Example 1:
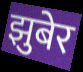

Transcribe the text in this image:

झुबेर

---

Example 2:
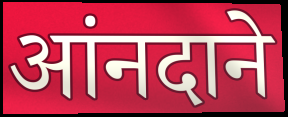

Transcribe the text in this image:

आंनदाने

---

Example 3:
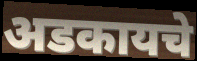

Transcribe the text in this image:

अडकायचे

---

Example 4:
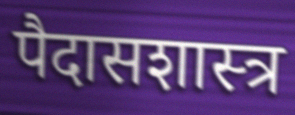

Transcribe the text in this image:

पैदासशास्त्र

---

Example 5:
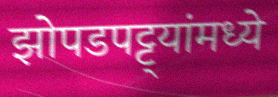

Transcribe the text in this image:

झोपडपट्ट्यांमध्ये